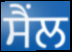
ਸੈਂਲ